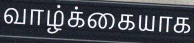
வாழ்க்கையாக